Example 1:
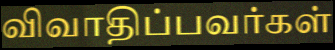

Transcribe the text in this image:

விவாதிப்பவர்கள்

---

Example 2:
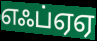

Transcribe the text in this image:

எஃப்ஏஏ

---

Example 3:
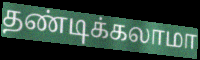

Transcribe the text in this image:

தண்டிக்கலாமா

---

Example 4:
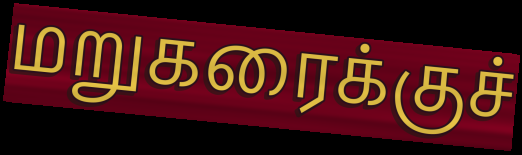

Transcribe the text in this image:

மறுகரைக்குச்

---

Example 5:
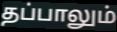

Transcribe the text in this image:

தப்பாலும்